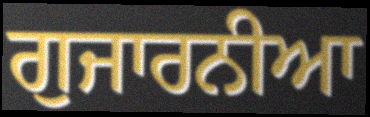
ਗੁਜਾਰਨੀਆ